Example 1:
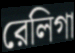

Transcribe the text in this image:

রেলিগা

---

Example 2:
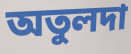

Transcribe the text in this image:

অতুলদা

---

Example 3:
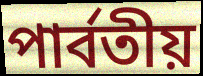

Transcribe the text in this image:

পার্বতীয়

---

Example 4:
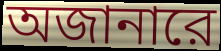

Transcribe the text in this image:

অজানারে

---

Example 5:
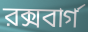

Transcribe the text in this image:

রক্সবার্গ